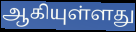
ஆகியுள்ளது